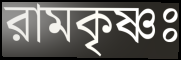
রামকৃষ্ণঃ